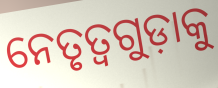
ନେତୃତ୍ୱଗୁଡ଼ାକୁ